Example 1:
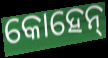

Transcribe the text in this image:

କୋହେନ୍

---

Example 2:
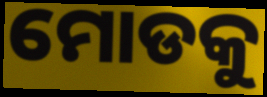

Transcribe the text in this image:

ମୋଡକୁ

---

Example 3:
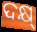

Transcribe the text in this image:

ଦକ୍ଷ୍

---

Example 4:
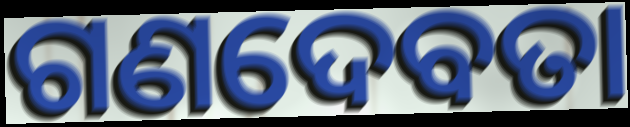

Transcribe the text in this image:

ଗଣଦେବତା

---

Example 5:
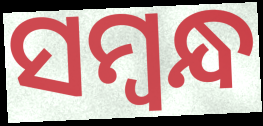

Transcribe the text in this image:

ସମ୍ବନ୍ଧ